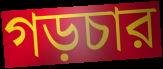
গড়চার